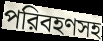
পরিবহণসহ